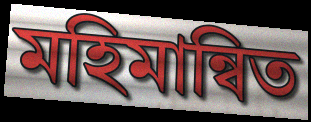
মহিমান্বিত